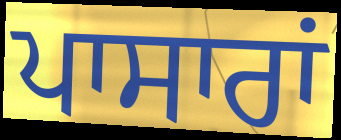
ਪਾਸਾਰਾਂ